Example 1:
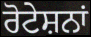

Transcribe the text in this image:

ਰੋਟੇਸ਼ਨਾਂ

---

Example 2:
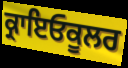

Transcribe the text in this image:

ਕ੍ਰਾਇਓਕੂਲਰ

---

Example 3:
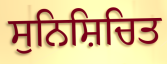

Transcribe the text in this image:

ਸੁਨਿਸ਼ਿਚਿਤ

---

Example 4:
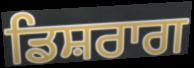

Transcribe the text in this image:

ਡਿਸ਼ਰਾਗ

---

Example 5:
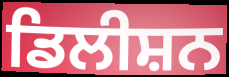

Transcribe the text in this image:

ਡਿਲੀਸ਼ਨ